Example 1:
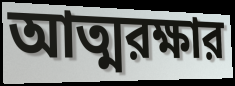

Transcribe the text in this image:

আত্মরক্ষার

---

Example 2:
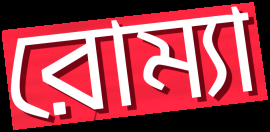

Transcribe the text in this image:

রোম্যা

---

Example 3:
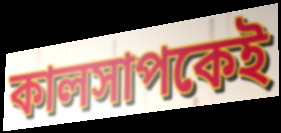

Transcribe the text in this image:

কালসাপকেই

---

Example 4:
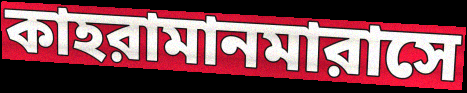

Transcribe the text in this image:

কাহরামানমারাসে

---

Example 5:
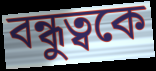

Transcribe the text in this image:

বন্ধুত্বকে